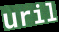
uril